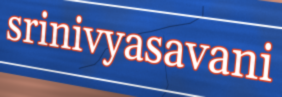
srinivyasavani